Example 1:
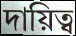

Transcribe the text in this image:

দায়িত্ব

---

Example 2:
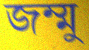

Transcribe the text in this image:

জম্মু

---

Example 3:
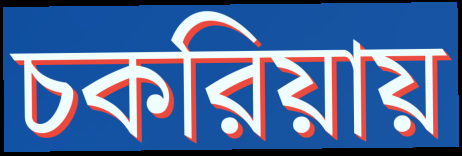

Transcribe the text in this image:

চকরিয়ায়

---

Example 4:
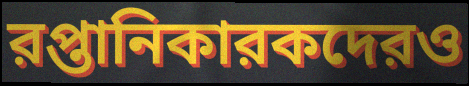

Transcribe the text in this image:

রপ্তানিকারকদেরও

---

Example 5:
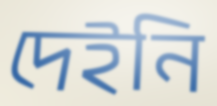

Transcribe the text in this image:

দেইনি